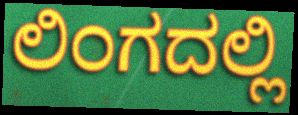
ಲಿಂಗದಲ್ಲಿ